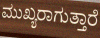
ಮುಖ್ಯರಾಗುತ್ತಾರೆ